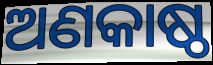
ଅଣକାଷ୍ଠ